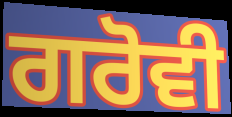
ਗਰੋਵੀ